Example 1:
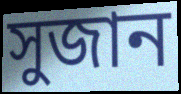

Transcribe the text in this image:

সুজান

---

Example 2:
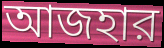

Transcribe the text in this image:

আজহার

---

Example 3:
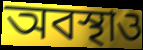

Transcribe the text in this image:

অবস্থাও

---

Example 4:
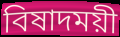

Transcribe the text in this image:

বিষাদময়ী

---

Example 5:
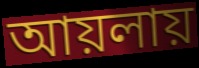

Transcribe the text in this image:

আয়লায়